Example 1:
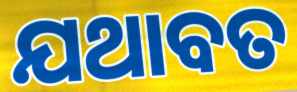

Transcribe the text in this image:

ଯଥାବତ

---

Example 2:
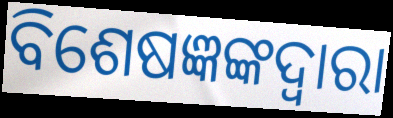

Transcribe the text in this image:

ବିଶେଷଜ୍ଞଙ୍କଦ୍ୱାରା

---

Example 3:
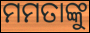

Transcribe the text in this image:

ମମତାଙ୍କୁ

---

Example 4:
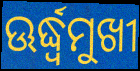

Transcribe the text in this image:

ଊର୍ଦ୍ଧ୍ବମୁଖୀ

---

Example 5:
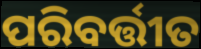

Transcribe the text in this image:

ପରିବର୍ତ୍ତୀତ